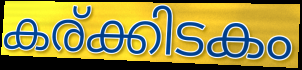
കര്ക്കിടകം